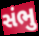
સંભુ